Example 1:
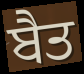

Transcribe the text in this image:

ਬੈਤ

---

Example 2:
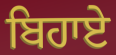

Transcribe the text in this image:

ਬਿਹਾਏ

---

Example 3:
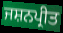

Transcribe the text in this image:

ਜਸ਼ਨਪ੍ਰੀਤ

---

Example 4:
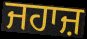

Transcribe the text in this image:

ਜਹਾਜ਼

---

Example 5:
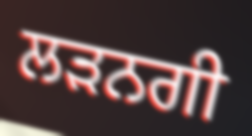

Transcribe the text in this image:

ਲੜਨਗੀ